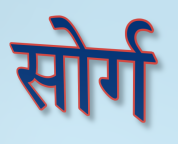
सोर्ग